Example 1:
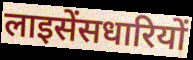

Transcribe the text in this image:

लाइसेंसधारियों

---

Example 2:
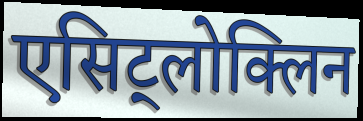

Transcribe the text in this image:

एसिट्लोक्लिन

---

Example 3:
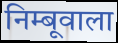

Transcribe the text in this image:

निम्बूवाला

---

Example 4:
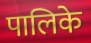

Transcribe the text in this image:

पालिके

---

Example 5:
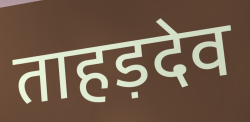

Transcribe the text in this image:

ताहड़देव